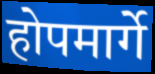
होपमार्गे